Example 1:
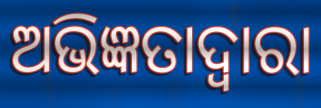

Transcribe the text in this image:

ଅଭିଜ୍ଞତାଦ୍ଵାରା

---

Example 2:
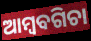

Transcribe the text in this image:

ଆମ୍ବବଗିଚା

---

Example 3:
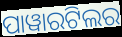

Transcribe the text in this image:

ପାୱାରଟିଲର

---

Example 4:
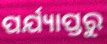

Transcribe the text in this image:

ପର୍ଯ୍ୟାପ୍ତରୁ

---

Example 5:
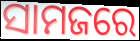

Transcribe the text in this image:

ସାମଜରେ